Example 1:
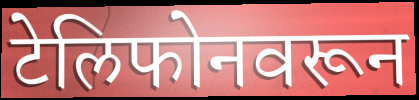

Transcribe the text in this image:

टेलिफोनवरून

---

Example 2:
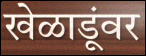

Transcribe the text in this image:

खेळाडूंवर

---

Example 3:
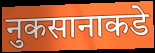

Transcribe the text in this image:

नुकसानाकडे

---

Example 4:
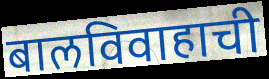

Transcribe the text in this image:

बालविवाहाची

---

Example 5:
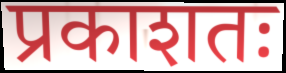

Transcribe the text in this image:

प्रकाशतः